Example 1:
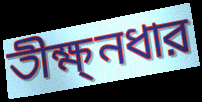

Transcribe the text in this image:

তীক্ষ্নধার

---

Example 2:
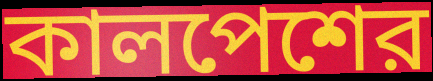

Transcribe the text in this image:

কালপেশের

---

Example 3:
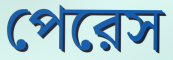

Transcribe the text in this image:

পেরেস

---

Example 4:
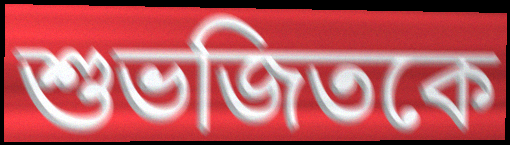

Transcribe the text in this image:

শুভজিতকে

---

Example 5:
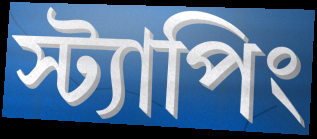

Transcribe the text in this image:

স্ট্যাপিং